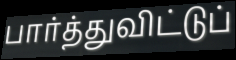
பார்த்துவிட்டுப்